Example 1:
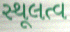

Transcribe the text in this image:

સ્થૂલત્વ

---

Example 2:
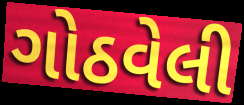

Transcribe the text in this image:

ગોઠવેલી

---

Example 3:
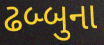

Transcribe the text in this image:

ઢબ્બુના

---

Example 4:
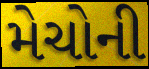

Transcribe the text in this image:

મેચોની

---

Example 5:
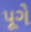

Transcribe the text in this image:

પૂગે